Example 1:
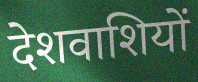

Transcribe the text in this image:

देशवाशियों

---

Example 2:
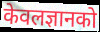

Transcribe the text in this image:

केवलज्ञानको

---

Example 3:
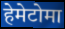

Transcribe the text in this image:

हेमेटोमा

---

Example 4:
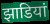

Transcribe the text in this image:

झाडियां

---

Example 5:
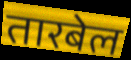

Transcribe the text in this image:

तारबेल